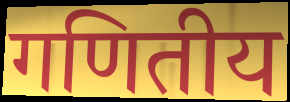
गणितीय